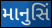
માનુસિં